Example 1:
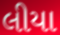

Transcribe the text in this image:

લીયા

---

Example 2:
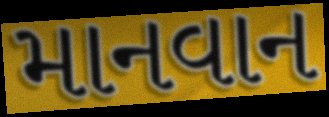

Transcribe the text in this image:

માનવાન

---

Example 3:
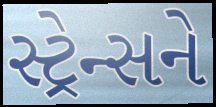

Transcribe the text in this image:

સ્ટ્રેન્સને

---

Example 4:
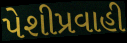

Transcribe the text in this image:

પેશીપ્રવાહી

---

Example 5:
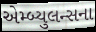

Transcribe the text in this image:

એમ્બ્યુલન્સના